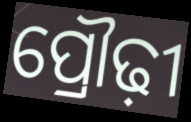
ପ୍ରୌଢ଼ୀ